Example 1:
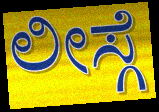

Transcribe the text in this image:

ಲೀಸ್ಗೆ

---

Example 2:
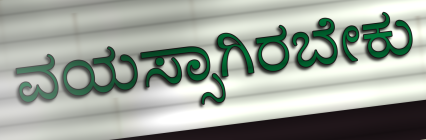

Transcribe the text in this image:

ವಯಸ್ಸಾಗಿರಬೇಕು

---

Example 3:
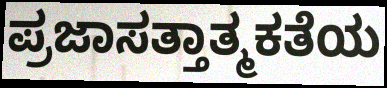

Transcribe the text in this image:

ಪ್ರಜಾಸತ್ತಾತ್ಮಕತೆಯ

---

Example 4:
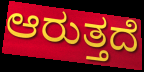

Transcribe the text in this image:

ಆರುತ್ತದೆ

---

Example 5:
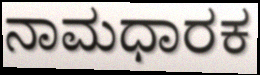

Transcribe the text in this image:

ನಾಮಧಾರಕ